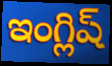
ఇంగ్లిష్